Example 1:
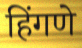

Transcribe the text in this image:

हिंगणे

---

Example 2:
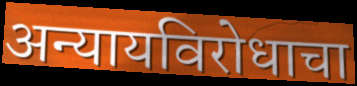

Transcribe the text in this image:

अन्यायविरोधाचा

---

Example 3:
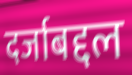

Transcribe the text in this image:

दर्जाबद्दल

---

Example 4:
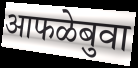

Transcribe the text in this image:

आफळेबुवा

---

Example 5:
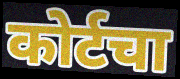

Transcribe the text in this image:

कोर्टचा